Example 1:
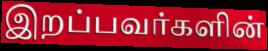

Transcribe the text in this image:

இறப்பவர்களின்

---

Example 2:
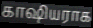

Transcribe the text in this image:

காஷியராக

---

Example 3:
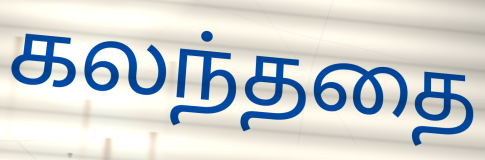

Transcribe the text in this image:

கலந்ததை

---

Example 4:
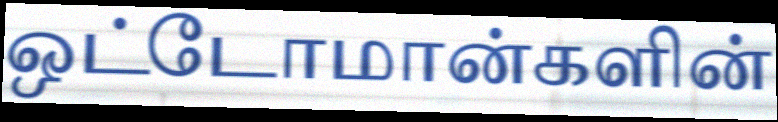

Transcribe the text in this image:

ஒட்டோமான்களின்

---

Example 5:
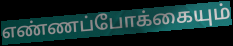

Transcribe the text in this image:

எண்ணப்போக்கையும்